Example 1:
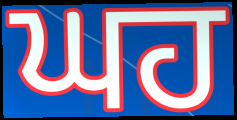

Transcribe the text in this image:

ਘਹ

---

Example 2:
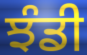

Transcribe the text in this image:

ਝੰਡੀ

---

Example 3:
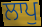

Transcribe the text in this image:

ਲਾਪੁ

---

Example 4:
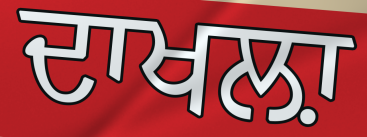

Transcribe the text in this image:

ਦਾਖਲ਼ਾ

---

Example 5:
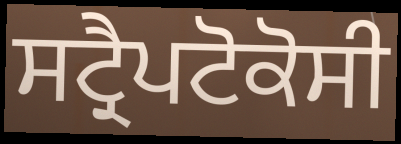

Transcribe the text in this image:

ਸਟ੍ਰੈਪਟੋਕੋਸੀ